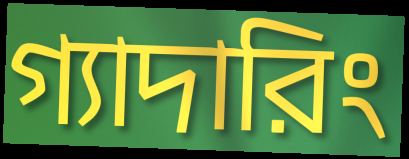
গ্যাদারিং